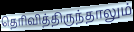
தெரிவித்திருந்தாலும்